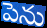
పెను